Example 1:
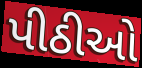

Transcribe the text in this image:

પીઠીઓ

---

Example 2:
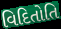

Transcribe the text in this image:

વિદિતોતિ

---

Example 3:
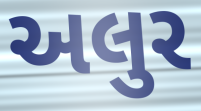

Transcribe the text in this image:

અલુર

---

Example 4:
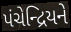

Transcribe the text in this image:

પંચેન્દ્રિયને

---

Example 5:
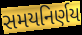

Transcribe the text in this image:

સમયનિર્ણય